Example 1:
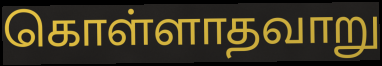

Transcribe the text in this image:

கொள்ளாதவாறு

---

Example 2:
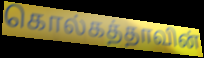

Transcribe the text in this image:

கொல்கத்தாவின்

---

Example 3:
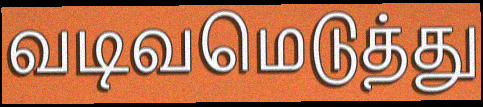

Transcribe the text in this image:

வடிவமெடுத்து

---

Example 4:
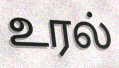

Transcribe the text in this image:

உரல்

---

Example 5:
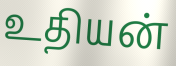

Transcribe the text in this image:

உதியன்